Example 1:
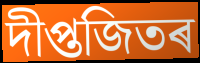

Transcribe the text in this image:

দীপ্তজিতৰ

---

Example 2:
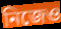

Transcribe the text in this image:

নিজেও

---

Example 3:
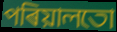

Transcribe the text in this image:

পৰিয়ালতো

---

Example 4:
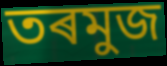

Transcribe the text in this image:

তৰমুজ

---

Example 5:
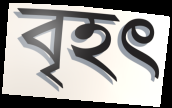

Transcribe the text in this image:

বৃহৎ